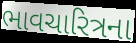
ભાવચારિત્રના